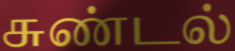
சுண்டல்